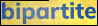
bipartite